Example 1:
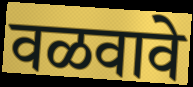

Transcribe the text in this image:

वळवावे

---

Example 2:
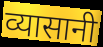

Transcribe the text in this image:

व्यासानी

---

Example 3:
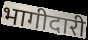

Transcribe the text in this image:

भागीदारी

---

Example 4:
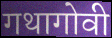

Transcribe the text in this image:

गथागोवी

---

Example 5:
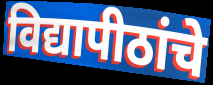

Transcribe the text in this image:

विद्यापीठांचे